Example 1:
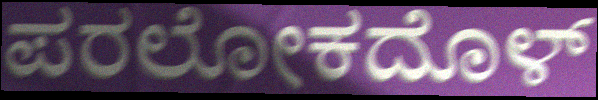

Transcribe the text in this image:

ಪರಲೋಕದೊಳ್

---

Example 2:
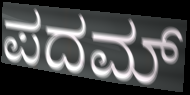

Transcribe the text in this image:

ಪದಮ್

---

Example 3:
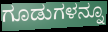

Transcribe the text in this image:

ಗೂಡುಗಳನ್ನೂ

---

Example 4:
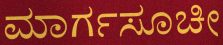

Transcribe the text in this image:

ಮಾರ್ಗಸೂಚೀ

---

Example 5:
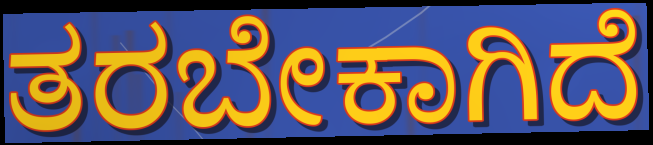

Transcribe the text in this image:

ತರಬೇಕಾಗಿದೆ